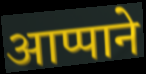
आप्पाने